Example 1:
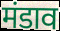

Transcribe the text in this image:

मंडाव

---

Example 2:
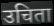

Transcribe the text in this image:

उचिता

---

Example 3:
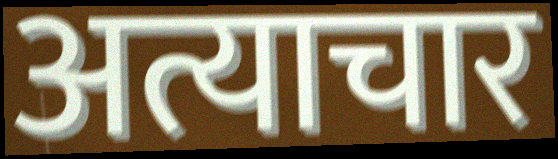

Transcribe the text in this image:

अत्याचार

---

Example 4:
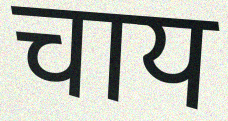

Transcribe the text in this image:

चाय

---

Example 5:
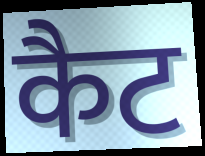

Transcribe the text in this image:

कैट